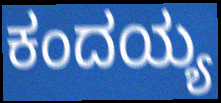
ಕಂದಯ್ಯ